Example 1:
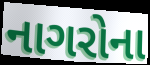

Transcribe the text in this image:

નાગરોના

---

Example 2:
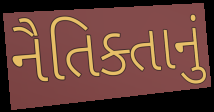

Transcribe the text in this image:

નૈતિક્તાનું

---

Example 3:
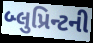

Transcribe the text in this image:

બ્લુપ્રિન્ટની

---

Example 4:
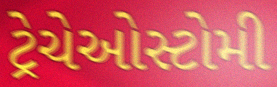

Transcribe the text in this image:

ટ્રેચેઓસ્ટોમી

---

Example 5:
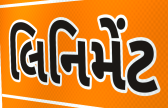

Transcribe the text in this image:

લિનિમેંટ